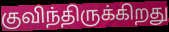
குவிந்திருக்கிறது